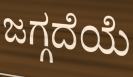
ಜಗ್ಗದೆಯೆ